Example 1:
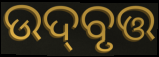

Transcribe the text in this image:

ଉଦ୍‌ବୃତ୍ତ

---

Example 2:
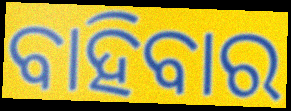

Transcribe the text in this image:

ବାହିବାର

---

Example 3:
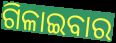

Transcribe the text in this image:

ଗିଳାଇବାର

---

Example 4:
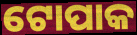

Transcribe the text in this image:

ଟୋପାକ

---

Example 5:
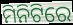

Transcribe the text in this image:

ମିନିଟିରେ